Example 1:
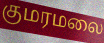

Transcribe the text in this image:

குமரமலை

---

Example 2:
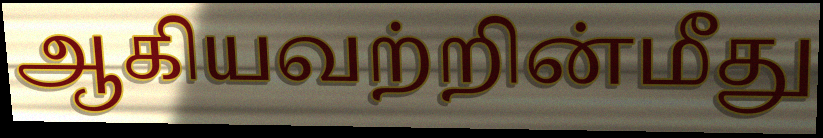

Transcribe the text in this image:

ஆகியவற்றின்மீது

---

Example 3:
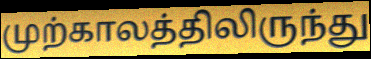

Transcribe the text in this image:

முற்காலத்திலிருந்து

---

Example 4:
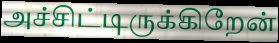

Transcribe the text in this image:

அச்சிட்டிருக்கிறேன்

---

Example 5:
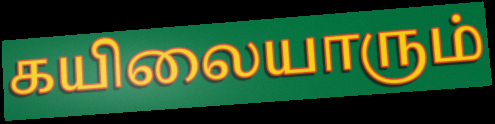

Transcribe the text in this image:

கயிலையாரும்